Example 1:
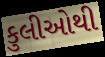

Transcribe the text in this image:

કુલીઓથી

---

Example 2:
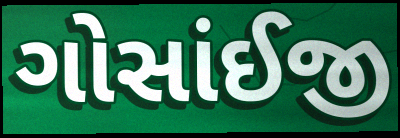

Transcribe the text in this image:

ગોસાંઈજી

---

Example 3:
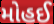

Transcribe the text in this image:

મોહઈ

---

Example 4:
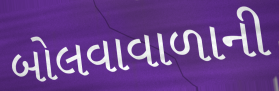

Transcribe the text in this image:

બોલવાવાળાની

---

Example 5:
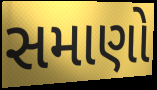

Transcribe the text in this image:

સમાણો